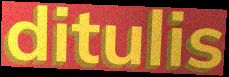
ditulis